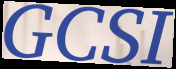
GCSI